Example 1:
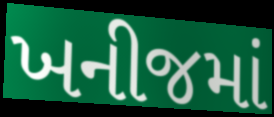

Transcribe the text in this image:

ખનીજમાં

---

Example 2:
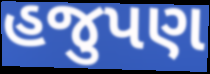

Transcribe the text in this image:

હજુપણ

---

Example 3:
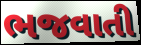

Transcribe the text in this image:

ભજવાતી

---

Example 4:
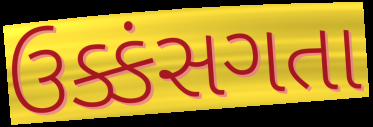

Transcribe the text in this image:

ઉક્કંસગતા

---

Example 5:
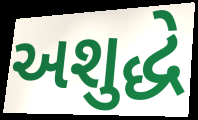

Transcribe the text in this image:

અશુદ્ધે